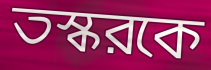
তস্করকে